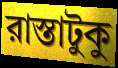
রাস্তাটুকু